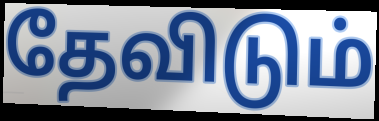
தேவிடும்